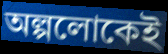
অল্পলোকেই